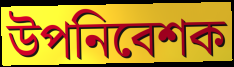
উপনিবেশক